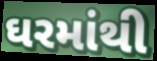
ઘરમાંથી